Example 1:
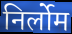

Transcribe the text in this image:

निर्लोम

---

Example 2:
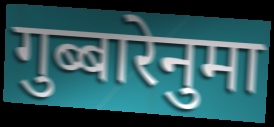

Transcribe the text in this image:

गुब्बारेनुमा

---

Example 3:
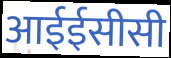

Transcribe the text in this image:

आईईसीसी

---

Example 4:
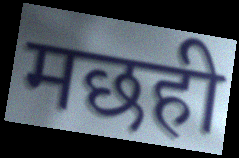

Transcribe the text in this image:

मछही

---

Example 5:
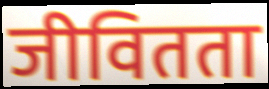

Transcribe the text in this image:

जीवितता